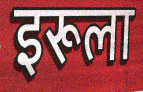
इरूला